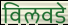
विलवडे